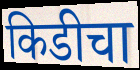
किडीचा